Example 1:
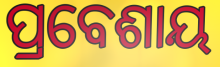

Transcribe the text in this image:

ପ୍ରବେଶାୟ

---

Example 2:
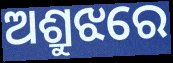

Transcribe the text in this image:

ଅଶ୍ରୁଝରେ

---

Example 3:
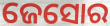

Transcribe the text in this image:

ଜେସୋର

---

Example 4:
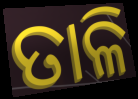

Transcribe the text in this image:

ତାଳି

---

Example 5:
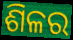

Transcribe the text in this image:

ଶିଳର